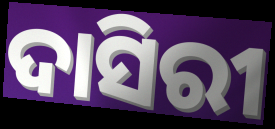
ଦାସିରୀ